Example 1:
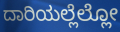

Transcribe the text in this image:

ದಾರಿಯಲ್ಲೆಲ್ಲೋ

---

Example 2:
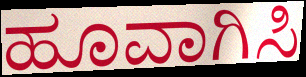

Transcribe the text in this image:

ಹೂವಾಗಿಸಿ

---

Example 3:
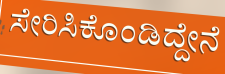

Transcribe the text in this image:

ಸೇರಿಸಿಕೊಂಡಿದ್ದೇನೆ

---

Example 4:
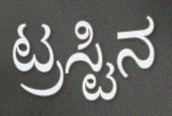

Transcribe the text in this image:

ಟ್ರಸ್ಟಿನ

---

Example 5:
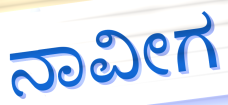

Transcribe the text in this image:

ನಾವೀಗ